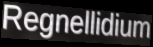
Regnellidium